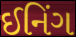
ઈનિંગ